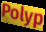
Polyp